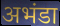
अभंडा